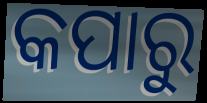
କପାରୁ